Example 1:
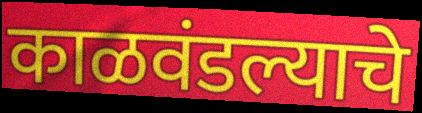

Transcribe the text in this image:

काळवंडल्याचे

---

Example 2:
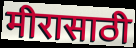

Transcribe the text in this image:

मीरासाठी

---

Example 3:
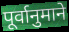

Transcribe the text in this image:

पूर्वानुमाने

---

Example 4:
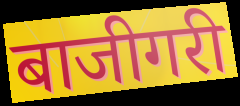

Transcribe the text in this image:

बाजीगरी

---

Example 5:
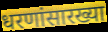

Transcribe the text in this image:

धरणांसारख्या